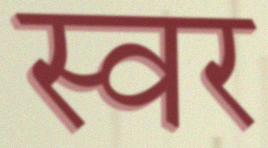
स्वर